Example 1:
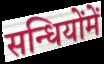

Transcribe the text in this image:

सन्धियोंमें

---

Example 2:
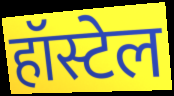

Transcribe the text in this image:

हॉस्टेल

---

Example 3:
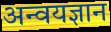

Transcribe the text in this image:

अन्वयज्ञान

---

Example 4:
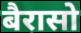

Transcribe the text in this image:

बैरासो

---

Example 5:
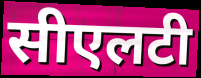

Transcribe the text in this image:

सीएलटी